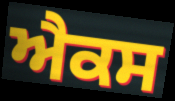
ਐਕਸ